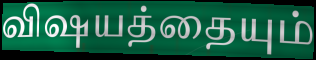
விஷயத்தையும்